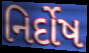
નિર્દોષ